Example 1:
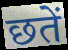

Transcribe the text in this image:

छतें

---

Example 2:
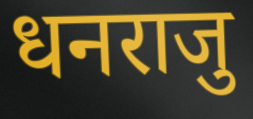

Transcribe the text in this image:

धनराजु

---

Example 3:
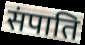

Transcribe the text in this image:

संपाति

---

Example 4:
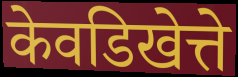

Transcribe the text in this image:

केवडिखेत्ते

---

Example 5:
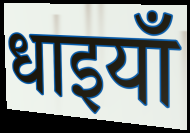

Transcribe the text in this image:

धाइयाँ